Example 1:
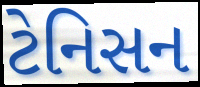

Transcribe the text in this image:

ટેનિસન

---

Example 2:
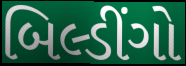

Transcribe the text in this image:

બિલ્ડીંગો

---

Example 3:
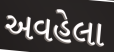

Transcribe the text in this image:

અવહેલા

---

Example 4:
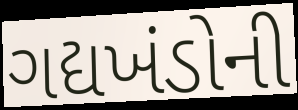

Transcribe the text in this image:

ગદ્યખંડોની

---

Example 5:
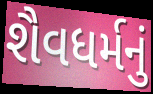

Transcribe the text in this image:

શૈવધર્મનું